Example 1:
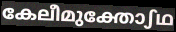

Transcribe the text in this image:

കേലീമുക്തോഽഥ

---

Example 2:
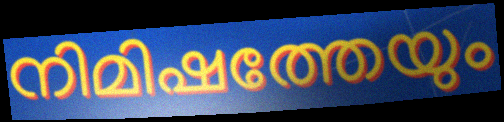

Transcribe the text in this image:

നിമിഷത്തേയും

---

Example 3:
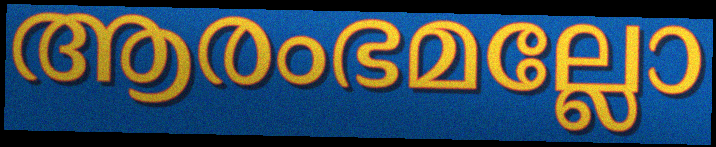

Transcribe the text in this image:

ആരംഭമല്ലോ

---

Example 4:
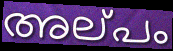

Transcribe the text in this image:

അല്‌പം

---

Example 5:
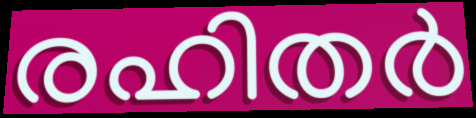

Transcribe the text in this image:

രഹിതർ